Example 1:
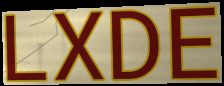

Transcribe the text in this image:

LXDE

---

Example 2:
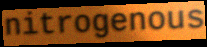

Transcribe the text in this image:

nitrogenous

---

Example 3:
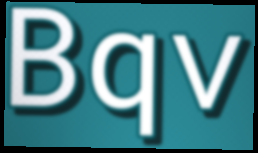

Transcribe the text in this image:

Bqv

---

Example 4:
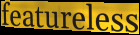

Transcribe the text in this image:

featureless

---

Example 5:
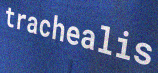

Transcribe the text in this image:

trachealis